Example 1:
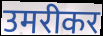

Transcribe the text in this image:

उमरीकर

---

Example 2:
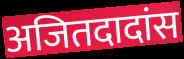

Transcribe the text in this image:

अजितदादांस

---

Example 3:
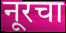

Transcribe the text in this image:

नूरचा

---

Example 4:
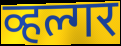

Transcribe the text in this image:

व्हल्गर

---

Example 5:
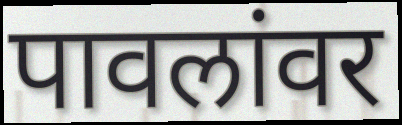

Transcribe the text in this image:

पावलांवर